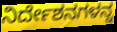
ನಿರ್ದೇಶನಗಳನ್ನ